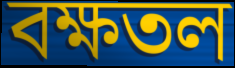
বক্ষতল